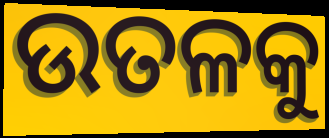
ଉତଳକୁ